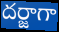
దర్జాగా